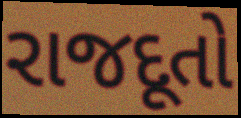
રાજદૂતો